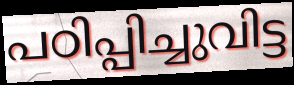
പഠിപ്പിച്ചുവിട്ട